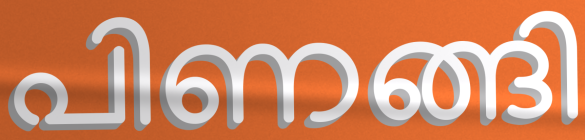
പിണങ്ങി